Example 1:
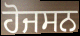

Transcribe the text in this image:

ਹੋਜਸਨ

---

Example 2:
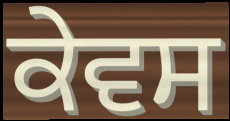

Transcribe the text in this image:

ਕੇਵਸ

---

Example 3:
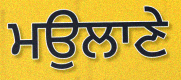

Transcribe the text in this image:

ਮਉਲਾਣੇ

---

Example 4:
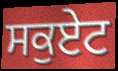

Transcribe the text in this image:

ਸਕੁਏਟ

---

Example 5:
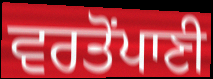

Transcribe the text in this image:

ਵਰਤੋਂਪਾਣੀ